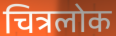
चित्रलोक